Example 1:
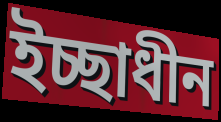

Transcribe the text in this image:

ইচ্ছাধীন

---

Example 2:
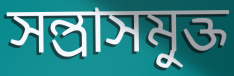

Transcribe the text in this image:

সন্ত্রাসমুক্ত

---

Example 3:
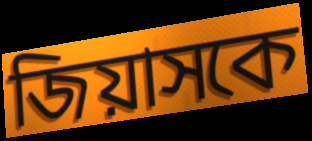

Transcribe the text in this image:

জিয়াসকে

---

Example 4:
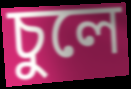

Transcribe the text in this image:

চুলে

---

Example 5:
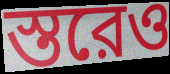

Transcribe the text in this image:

স্তরেও